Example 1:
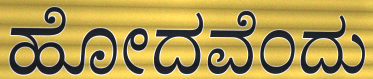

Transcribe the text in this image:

ಹೋದವೆಂದು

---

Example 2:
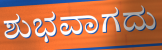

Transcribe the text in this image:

ಶುಭವಾಗದು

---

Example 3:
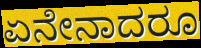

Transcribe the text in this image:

ಏನೇನಾದರೂ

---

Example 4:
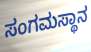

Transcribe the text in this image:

ಸಂಗಮಸ್ಥಾನ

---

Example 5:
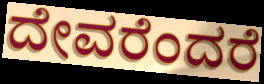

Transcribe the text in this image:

ದೇವರೆಂದರೆ